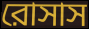
রোসাস